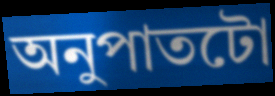
অনুপাতটো